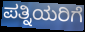
ಪತ್ನಿಯರಿಗೆ